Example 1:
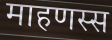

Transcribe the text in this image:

माहणस्स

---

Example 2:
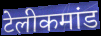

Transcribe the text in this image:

टेलीकमांड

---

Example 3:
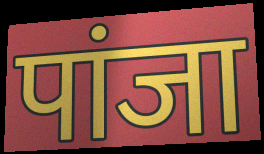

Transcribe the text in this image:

पांजा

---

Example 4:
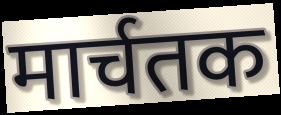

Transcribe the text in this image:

मार्चतक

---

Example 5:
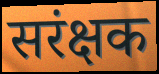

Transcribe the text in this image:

सरंक्षक